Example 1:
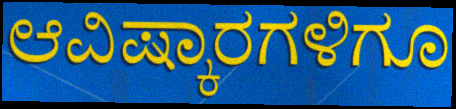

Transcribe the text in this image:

ಆವಿಷ್ಕಾರಗಳಿಗೂ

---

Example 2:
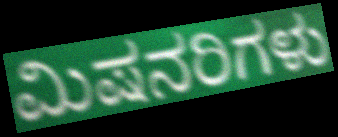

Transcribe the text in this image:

ಮಿಷನರಿಗಳು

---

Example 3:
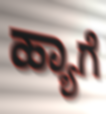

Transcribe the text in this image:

ಹ್ಯಾಗೆ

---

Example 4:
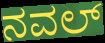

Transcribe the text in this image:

ನವಲ್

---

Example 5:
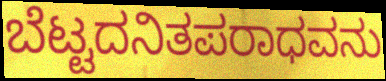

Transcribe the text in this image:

ಬೆಟ್ಟದನಿತಪರಾಧವನು